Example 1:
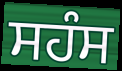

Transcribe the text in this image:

ਸਹੰਸ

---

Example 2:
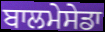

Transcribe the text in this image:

ਬਾਲਮੇਸੇਡਾ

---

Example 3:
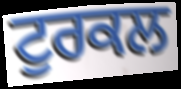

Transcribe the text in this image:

ਟੁਰਕਲ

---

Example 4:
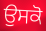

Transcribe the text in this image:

ਉਸਕੋ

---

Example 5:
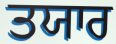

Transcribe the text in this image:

ਤਯਾਰ